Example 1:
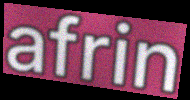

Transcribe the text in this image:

afrin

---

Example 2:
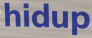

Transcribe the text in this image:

hidup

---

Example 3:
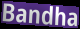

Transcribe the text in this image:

Bandha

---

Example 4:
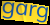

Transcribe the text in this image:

garg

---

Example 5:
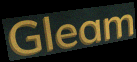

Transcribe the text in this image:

Gleam